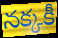
నక్కకీ